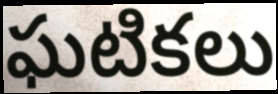
ఘటికలు